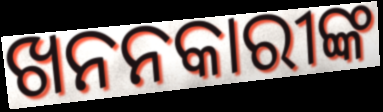
ଖନନକାରୀଙ୍କ